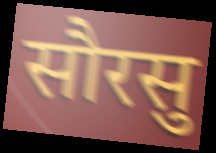
सौरसु